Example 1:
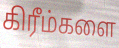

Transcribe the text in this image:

கிரீம்களை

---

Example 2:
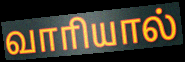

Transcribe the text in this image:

வாரியால்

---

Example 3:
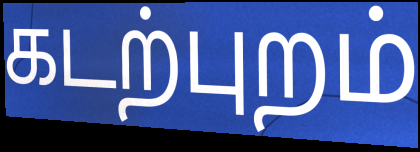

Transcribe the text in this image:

கடற்புறம்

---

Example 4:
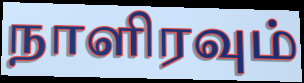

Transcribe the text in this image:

நாளிரவும்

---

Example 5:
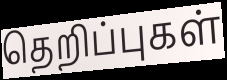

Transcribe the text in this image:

தெறிப்புகள்